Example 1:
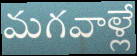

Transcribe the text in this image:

మగవాళ్లే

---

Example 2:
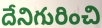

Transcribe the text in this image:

దేనిగురించి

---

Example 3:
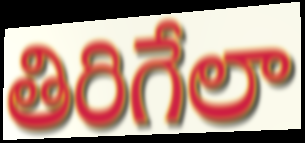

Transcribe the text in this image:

తిరిగేలా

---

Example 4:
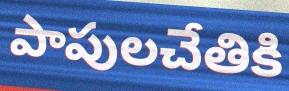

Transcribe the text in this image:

పాపులచేతికి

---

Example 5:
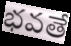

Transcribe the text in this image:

భవతే